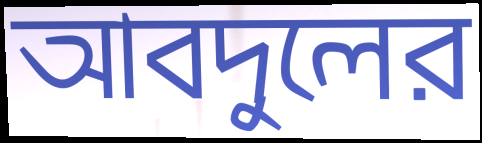
আবদুলের